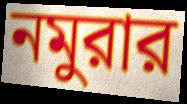
নমুরার